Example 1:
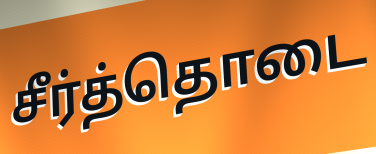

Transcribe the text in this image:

சீர்த்தொடை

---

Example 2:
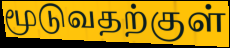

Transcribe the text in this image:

மூடுவதற்குள்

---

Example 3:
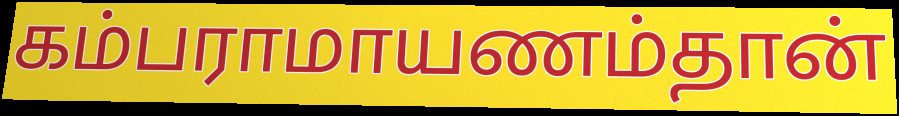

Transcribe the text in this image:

கம்பராமாயணம்தான்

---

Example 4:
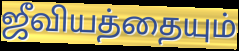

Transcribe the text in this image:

ஜீவியத்தையும்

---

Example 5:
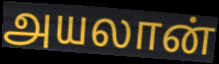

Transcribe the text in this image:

அயலான்